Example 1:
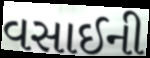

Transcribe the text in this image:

વસાઈની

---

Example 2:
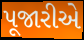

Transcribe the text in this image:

પૂજારીએ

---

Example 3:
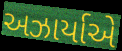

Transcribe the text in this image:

અઝાર્યાએ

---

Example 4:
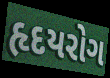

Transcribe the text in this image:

હૃદયરોગ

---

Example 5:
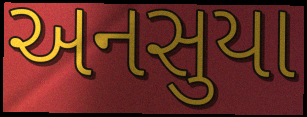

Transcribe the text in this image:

અનસુયા